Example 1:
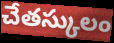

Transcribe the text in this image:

చేతస్కులం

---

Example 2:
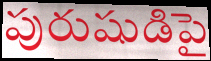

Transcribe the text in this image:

పురుషుడిపై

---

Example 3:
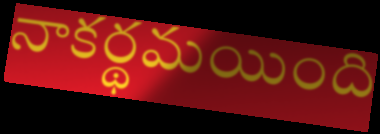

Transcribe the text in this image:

నాకర్థమయింది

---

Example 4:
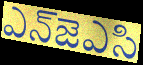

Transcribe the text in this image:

ఎన్‌జెఎసి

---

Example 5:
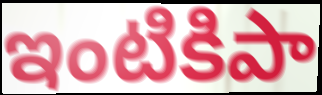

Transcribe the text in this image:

ఇంటికిపా